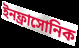
ইনফ্রাসোনিক